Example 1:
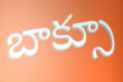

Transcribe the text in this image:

బాక్సూ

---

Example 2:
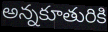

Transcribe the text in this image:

అన్నకూతురికి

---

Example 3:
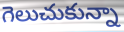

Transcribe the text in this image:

గెలుచుకున్నా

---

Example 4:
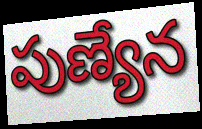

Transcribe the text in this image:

పుణ్యేన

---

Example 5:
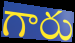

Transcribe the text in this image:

గారు